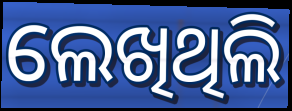
ଲେଖିଥିଲି